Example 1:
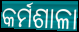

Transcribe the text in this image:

କର୍ମଶାଳା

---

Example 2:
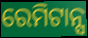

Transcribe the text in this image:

ରେମିଟାନ୍ସ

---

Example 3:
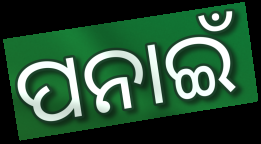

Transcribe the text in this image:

ପନାଇଁ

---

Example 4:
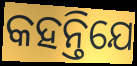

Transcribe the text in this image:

କହନ୍ତିଯେ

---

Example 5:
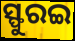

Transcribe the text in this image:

ସ୍ଫୁରଇ